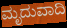
ಮೃದುವಾದಿ